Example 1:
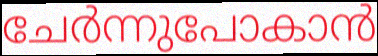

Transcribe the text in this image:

ചേർന്നുപോകാൻ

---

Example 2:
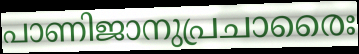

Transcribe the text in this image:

പാണിജാനുപ്രചാരൈഃ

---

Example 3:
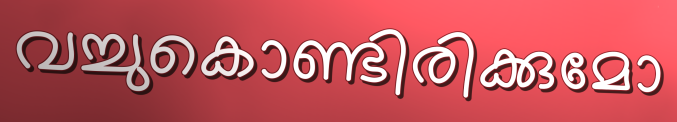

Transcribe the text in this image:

വച്ചുകൊണ്ടിരിക്കുമോ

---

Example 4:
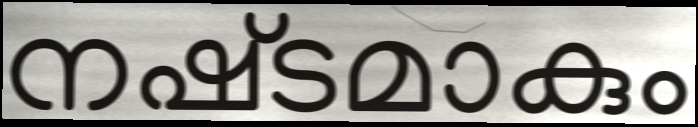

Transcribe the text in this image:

നഷ്‌ടമാകും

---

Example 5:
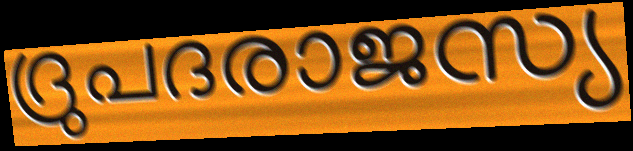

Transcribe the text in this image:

ദ്രുപദരാജസ്യ